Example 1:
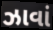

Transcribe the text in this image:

ઝાવાં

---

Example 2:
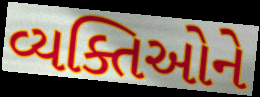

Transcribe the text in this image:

વ્યક્તિઓને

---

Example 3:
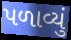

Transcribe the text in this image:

પળાવ્યું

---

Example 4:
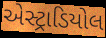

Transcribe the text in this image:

એસ્ટ્રાડિયોલ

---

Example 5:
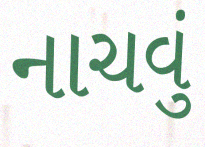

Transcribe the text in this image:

નાચવું